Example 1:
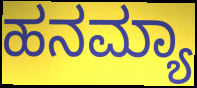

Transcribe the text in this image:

ಹನಮ್ಯಾ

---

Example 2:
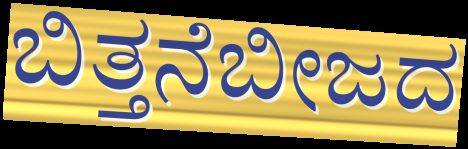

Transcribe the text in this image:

ಬಿತ್ತನೆಬೀಜದ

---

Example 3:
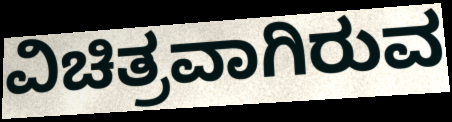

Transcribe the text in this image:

ವಿಚಿತ್ರವಾಗಿರುವ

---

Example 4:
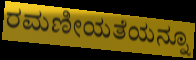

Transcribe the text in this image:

ರಮಣೀಯತೆಯನ್ನೂ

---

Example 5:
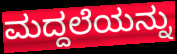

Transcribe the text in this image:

ಮದ್ದಲೆಯನ್ನು